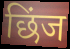
छिंज